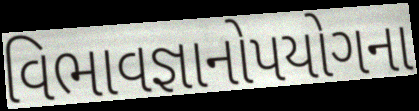
વિભાવજ્ઞાનોપયોગના